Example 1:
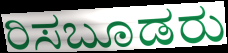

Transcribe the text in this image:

ರಿಸಬೂಡರು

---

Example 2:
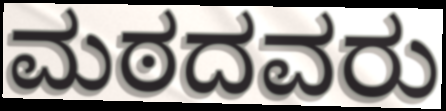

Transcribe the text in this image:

ಮಠದವರು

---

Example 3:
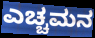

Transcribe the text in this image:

ಎಚ್ಚಮನ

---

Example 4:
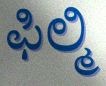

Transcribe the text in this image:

ಫಿಲ್ಮಿ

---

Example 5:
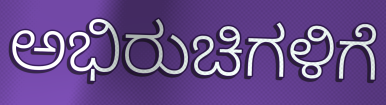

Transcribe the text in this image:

ಅಭಿರುಚಿಗಳಿಗೆ